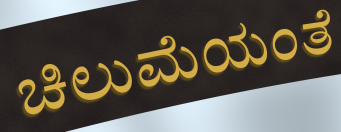
ಚಿಲುಮೆಯಂತೆ